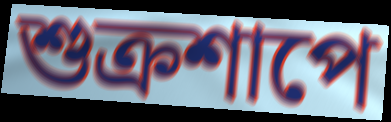
শুক্রশাপে